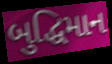
બુદ્ધિમાન